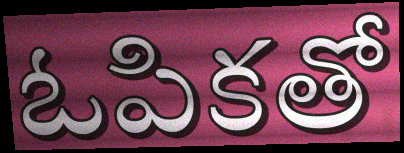
ఓపికతో